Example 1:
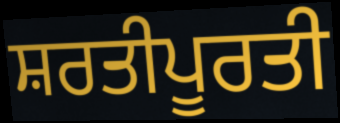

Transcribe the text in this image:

ਸ਼ਰਤੀਪੂਰਤੀ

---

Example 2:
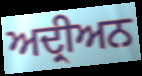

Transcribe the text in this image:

ਅਦ੍ਰੀਅਨ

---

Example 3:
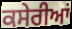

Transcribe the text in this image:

ਕਸੇਰੀਆਂ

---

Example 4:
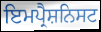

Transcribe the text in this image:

ਇਮਪ੍ਰੈਸ਼ਨਿਸਟ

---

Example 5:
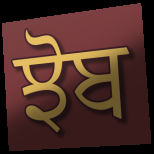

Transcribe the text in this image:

ਝੋਬ